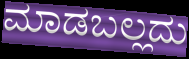
ಮಾಡಬಲ್ಲದು